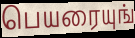
பெயரையுங்